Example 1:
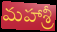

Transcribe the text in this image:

మహాశ్రీ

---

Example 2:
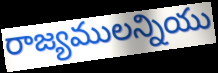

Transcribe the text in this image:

రాజ్యములన్నియు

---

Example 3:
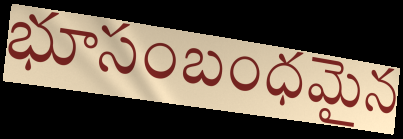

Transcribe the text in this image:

భూసంబంధమైన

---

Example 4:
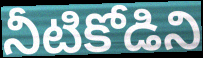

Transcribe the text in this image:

నీటికోడిని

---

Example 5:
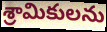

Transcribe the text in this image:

శ్రామికులను